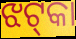
ଝଟ୍‍କା